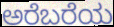
ಅರೆಬರೆಯ